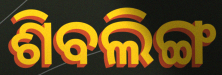
ଶିବଲିଙ୍ଗ